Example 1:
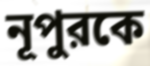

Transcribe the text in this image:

নূপুরকে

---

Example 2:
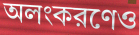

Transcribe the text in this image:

অলংকরণেও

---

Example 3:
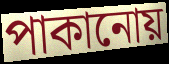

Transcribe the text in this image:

পাকানোয়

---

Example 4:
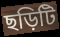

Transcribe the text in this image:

ছড়িটি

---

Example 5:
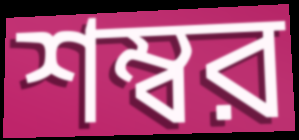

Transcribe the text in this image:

শম্বর